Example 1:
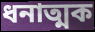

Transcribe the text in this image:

ধনাত্মক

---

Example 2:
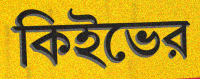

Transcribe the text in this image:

কিইভের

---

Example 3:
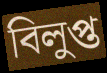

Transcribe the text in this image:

বিলুপ্ত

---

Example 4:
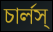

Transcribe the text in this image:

চার্লস্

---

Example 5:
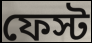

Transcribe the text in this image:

ফেস্ট